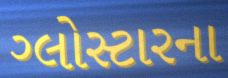
ગ્લોસ્ટારના